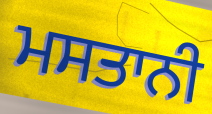
ਮਸਤਾਨੀ